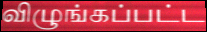
விழுங்கப்பட்ட